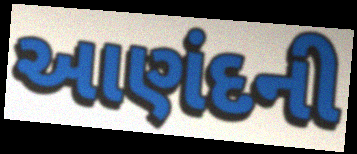
આણંદની